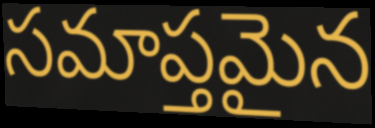
సమాప్తమైన